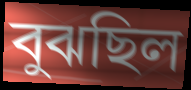
বুঝছিল